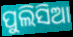
ପୁଲିସିଆ